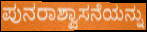
ಪುನರಾಶ್ವಾಸನೆಯನ್ನು